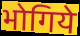
भोगिये